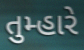
તુમ્હારે